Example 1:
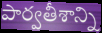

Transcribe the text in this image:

పార్వతీశాన్ని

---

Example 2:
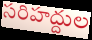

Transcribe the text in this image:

సరిహద్దుల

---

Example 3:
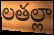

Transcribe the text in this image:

లతల్లా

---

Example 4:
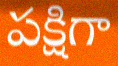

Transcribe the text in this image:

పక్షిగా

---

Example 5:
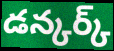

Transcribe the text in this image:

డన్కర్క్